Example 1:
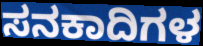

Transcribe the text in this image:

ಸನಕಾದಿಗಳ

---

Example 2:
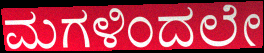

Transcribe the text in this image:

ಮಗಳಿಂದಲೇ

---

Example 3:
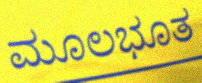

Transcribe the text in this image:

ಮೂಲಭೂತ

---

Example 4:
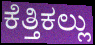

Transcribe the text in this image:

ಕೆತ್ತಿಕಲ್ಲು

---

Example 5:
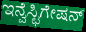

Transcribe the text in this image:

ಇನ್ವೆಸ್ಟಿಗೇಷನ್